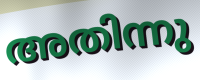
അതിന്നു